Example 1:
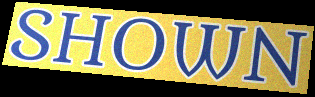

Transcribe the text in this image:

SHOWN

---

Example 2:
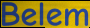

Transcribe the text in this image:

Belem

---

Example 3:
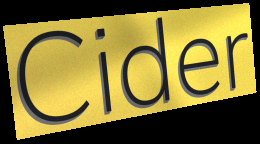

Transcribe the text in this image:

Cider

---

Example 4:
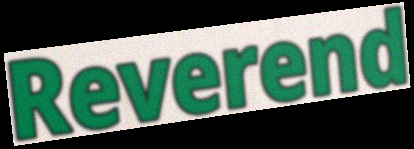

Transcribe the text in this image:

Reverend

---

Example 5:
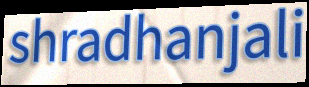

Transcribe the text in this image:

shradhanjali